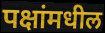
पक्षांमधील